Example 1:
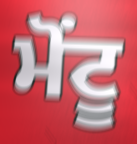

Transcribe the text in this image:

ਮੋਂਟੂ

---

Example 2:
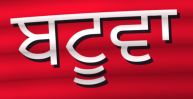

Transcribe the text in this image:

ਬਟੂਵਾ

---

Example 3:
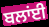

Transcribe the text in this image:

ਬਲਾਂਈ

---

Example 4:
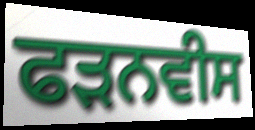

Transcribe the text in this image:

ਫੜਨਵੀਸ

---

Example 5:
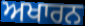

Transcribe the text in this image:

ਅਖਾਰਨ